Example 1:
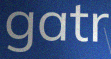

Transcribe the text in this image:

gatr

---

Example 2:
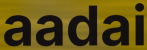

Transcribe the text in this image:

aadai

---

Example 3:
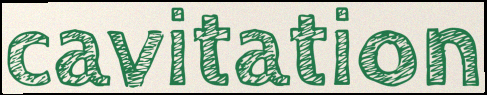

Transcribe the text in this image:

cavitation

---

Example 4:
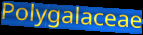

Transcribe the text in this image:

Polygalaceae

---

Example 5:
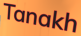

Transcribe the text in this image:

Tanakh